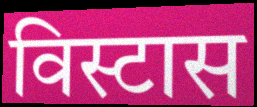
विस्टास